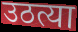
उठत्या